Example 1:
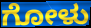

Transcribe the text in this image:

ಗೋಳು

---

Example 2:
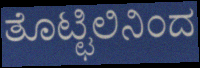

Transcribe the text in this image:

ತೊಟ್ಟಿಲಿನಿಂದ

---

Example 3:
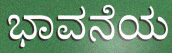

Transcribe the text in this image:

ಭಾವನೆಯ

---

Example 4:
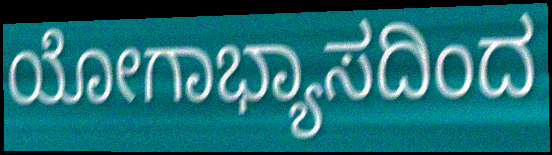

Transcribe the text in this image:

ಯೋಗಾಭ್ಯಾಸದಿಂದ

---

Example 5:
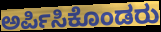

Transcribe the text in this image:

ಅರ್ಪಿಸಿಕೊಂಡರು